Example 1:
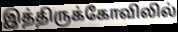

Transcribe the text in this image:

இத்திருக்கோவிலில்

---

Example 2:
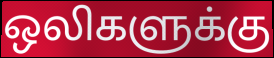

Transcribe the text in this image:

ஒலிகளுக்கு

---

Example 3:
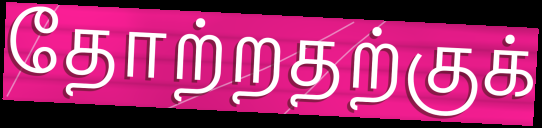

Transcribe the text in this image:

தோற்றதற்குக்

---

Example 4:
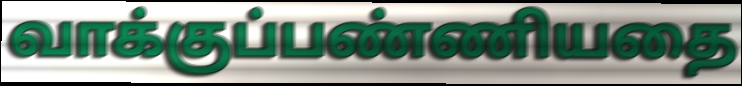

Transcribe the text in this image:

வாக்குப்பண்ணியதை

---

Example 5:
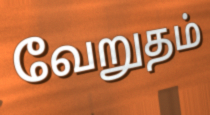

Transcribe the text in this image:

வேறுதம்